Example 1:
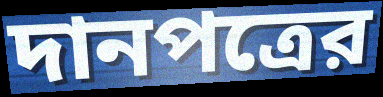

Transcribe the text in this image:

দানপত্রের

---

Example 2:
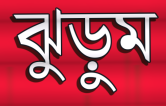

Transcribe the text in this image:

ঝুড়ুম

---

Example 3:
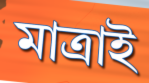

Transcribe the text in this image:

মাত্রাই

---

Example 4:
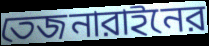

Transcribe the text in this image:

তেজনারাইনের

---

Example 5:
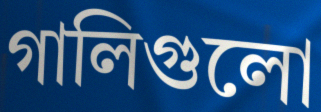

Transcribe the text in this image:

গালিগুলো